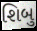
શિબુ